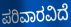
ಪರಿವಾರವಿದೆ